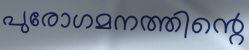
പുരോഗമനത്തിന്റെ